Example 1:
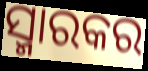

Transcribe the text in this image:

ସ୍ମାରକର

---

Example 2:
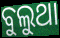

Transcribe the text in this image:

ବୁଲୁଥା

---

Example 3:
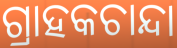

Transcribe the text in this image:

ଗ୍ରାହକଚାନ୍ଦା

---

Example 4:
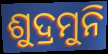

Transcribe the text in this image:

ଶୁଦ୍ରମୁନି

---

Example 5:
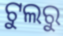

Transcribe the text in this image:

ଟୁଲରୁ